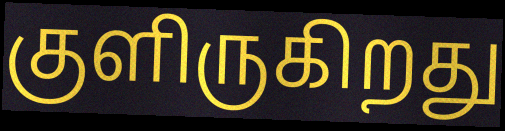
குளிருகிறது